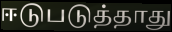
ஈடுபடுத்தாது